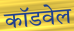
कॉडवेल